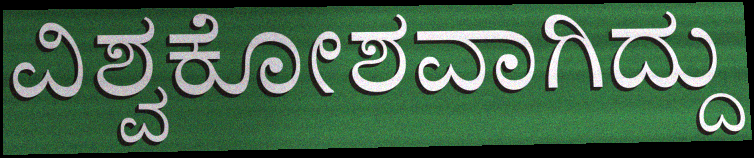
ವಿಶ್ವಕೋಶವಾಗಿದ್ದು